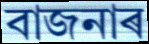
বাজনাৰ